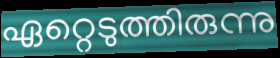
ഏറ്റെടുത്തിരുന്നു